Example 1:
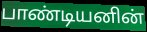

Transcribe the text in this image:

பாண்டியனின்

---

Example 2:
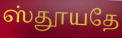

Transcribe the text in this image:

ஸ்தூயதே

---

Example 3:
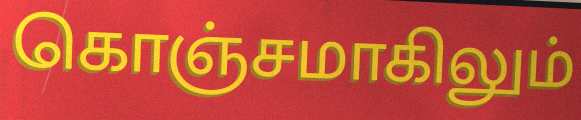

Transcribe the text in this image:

கொஞ்சமாகிலும்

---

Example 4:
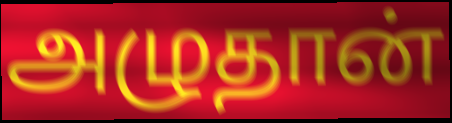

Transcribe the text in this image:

அழுதான்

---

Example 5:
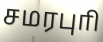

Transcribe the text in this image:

சமரபுரி